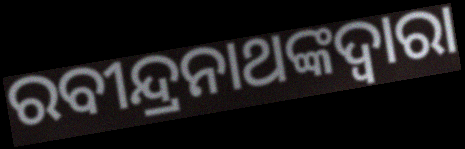
ରବୀନ୍ଦ୍ରନାଥଙ୍କଦ୍ୱାରା